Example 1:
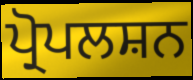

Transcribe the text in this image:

ਪ੍ਰੋਪਲਸ਼ਨ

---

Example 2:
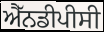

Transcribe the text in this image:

ਐੱਨਡੀਪੀਸੀ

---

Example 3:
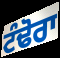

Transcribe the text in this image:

ਟੰਢੋਰਾ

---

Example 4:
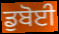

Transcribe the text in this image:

ਡੁਬੋਈ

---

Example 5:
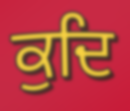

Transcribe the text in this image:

ਕੁਦਿ